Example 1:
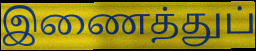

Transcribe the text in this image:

இணைத்துப்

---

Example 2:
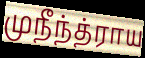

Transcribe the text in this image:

முநீந்த்ராய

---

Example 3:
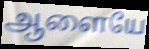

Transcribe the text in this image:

ஆளையே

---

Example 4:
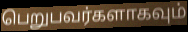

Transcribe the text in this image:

பெறுபவர்களாகவும்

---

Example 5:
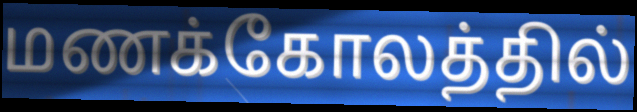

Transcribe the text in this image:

மணக்கோலத்தில்